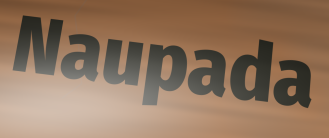
Naupada